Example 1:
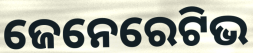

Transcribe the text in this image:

ଜେନେରେଟିଭ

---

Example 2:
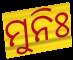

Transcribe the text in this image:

ମୁନିଃ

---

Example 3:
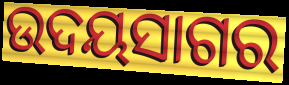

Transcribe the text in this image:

ଉଦୟସାଗର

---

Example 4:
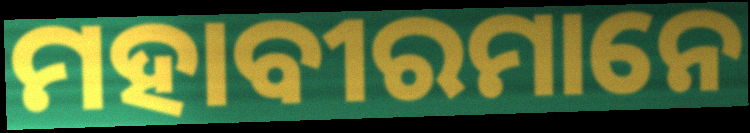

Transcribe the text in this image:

ମହାବୀରମାନେ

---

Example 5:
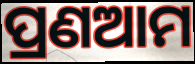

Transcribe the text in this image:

ପ୍ରଣଆମ